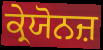
ਕ੍ਰੇਯੋਨਜ਼